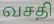
வசதி